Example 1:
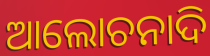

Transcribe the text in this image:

ଆଲୋଚନାଦି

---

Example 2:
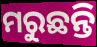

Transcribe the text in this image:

ମରୁଛନ୍ତି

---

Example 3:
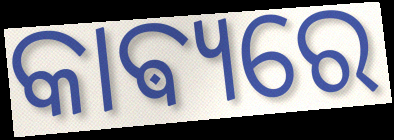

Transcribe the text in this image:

କାଵ୍ଯରେ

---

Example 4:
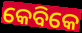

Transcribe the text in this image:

କେବିକେ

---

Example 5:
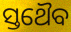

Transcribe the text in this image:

ସ୍ତଥୈବ